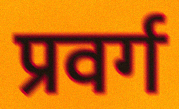
प्रवर्ग